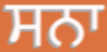
ਸਨਾ